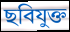
ছবিযুক্ত